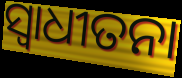
ସ୍ବାଧୀତନା